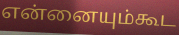
என்னையும்கூட